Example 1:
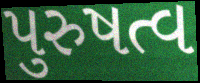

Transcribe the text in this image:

પુરુષત્વ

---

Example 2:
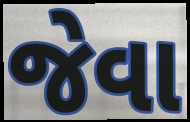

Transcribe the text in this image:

જેવા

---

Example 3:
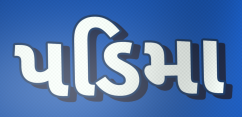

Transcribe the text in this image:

પડિમા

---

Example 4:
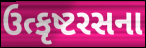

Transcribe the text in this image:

ઉત્કૃષ્ટરસના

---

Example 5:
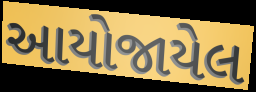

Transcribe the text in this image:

આયોજાયેલ